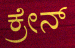
ಕ್ರೇನ್